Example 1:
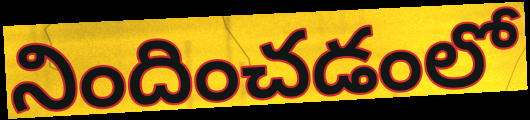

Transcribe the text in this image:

నిందించడంలో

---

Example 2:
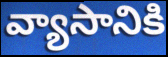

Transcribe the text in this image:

వ్యాసానికి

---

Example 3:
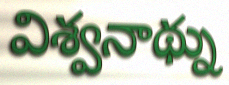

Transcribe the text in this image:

విశ్వనాథ్ను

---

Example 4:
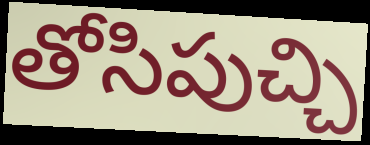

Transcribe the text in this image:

తోసిపుచ్చి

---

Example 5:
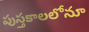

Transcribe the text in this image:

పుస్తకాలలోనూ